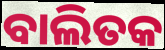
ବାଲିତକ